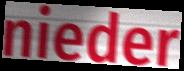
nieder